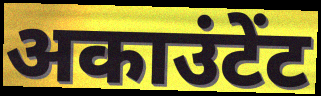
अकाउंटेंट